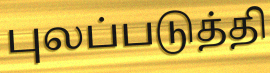
புலப்படுத்தி